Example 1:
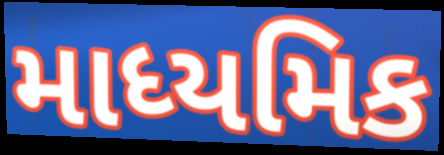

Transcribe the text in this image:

માધ્યમિક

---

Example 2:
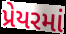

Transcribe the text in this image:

પ્રેયરમાં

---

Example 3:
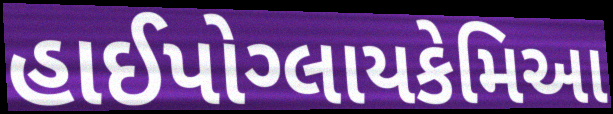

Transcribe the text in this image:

હાઈપોગ્લાયકેમિઆ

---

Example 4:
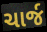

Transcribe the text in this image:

ચાર્જ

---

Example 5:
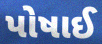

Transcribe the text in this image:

પોષાઈ